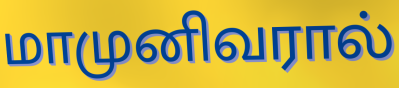
மாமுனிவரால்